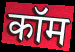
कॉम